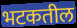
भटकतील